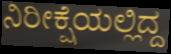
ನಿರೀಕ್ಷೆಯಲ್ಲಿದ್ದ